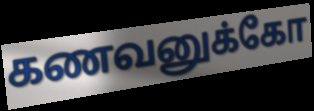
கணவனுக்கோ